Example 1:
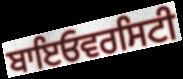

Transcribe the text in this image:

ਬਾਇਓਵਰਸਿਟੀ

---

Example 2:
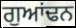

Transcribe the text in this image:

ਗੁਆਂਢਨ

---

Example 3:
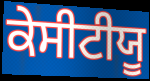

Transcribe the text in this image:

ਕੇਸੀਟੀਯੂ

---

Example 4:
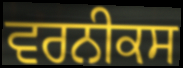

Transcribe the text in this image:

ਵਰਨੀਕਸ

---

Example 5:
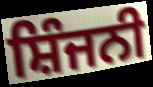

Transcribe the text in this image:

ਸ਼ਿੰਜਨੀ